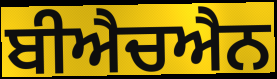
ਬੀਐਚਐਨ